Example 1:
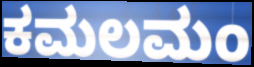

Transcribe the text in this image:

ಕಮಲಮಂ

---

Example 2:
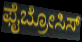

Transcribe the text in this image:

ಫೈಬ್ರೋಸಿಸ್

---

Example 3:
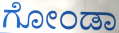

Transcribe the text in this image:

ಗೋಂಡಾ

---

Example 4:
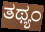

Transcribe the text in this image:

ತಥ್ಯಂ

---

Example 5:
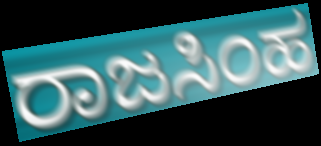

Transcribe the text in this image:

ರಾಜಸಿಂಹ